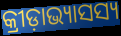
କ୍ରୀଡ଼ାଭ୍ୟାସସ୍ୟ